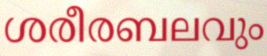
ശരീരബലവും